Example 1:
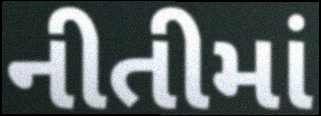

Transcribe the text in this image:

નીતીમાં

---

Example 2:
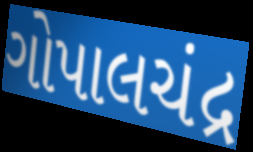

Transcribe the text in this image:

ગોપાલચંદ્ર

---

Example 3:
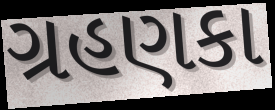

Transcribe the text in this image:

ગ્રહણકા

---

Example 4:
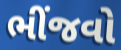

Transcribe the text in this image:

ભીંજવો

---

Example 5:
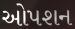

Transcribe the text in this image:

ઓપશન